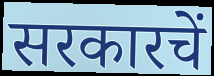
सरकारचें